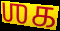
ஶக